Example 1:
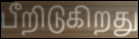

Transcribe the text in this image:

பீறிடுகிறது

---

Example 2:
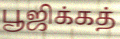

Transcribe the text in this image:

பூஜிக்கத்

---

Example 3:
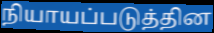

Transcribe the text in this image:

நியாயப்படுத்தின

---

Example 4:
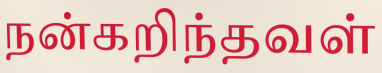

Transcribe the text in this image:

நன்கறிந்தவள்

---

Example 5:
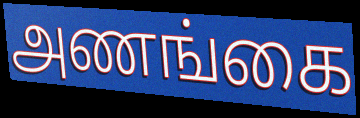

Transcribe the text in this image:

அணங்கை